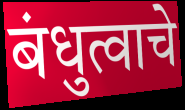
बंधुत्वाचे